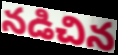
నడిచిన